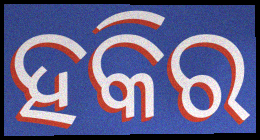
ହକିର